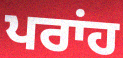
ਪਰਾਂਹ